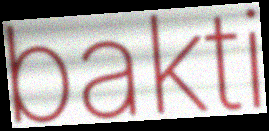
bakti